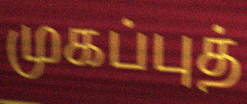
முகப்புத்